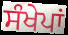
ਸੰਖੇਪਾਂ